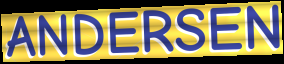
ANDERSEN